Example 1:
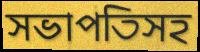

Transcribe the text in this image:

সভাপতিসহ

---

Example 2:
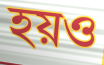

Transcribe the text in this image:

হয়ও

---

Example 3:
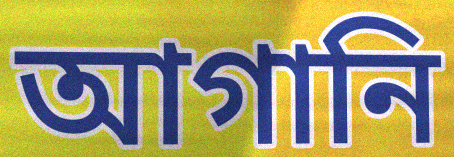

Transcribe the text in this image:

আগানি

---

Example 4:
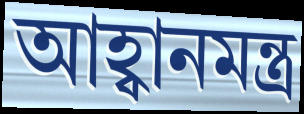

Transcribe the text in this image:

আহ্বানমন্ত্র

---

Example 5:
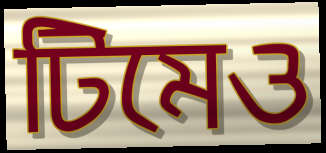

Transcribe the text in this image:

টিমেও